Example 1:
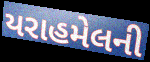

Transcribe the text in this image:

યરાહમેલની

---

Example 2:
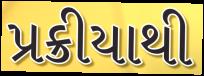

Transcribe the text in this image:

પ્રક્રીયાથી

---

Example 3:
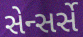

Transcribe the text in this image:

સેન્સર્સે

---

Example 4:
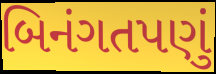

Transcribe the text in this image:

બિનંગતપણું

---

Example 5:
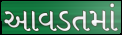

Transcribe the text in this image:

આવડતમાં